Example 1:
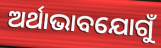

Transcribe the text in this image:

ଅର୍ଥାଭାବଯୋଗୁଁ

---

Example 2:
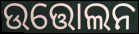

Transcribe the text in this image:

ଉତ୍ତୋଲନ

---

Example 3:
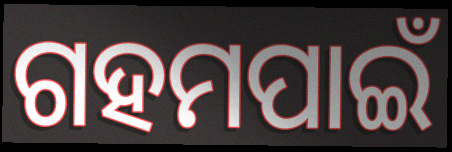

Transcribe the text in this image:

ଗହମପାଇଁ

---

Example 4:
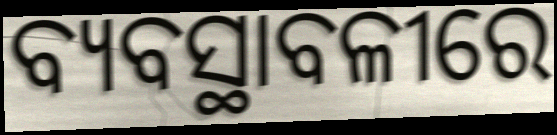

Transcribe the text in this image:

ବ୍ୟବସ୍ଥାବଳୀରେ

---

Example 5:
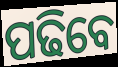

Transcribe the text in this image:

ପଢିବେ